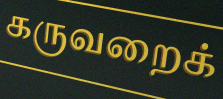
கருவறைக்